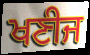
ਖਣੀਜ